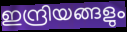
ഇന്ദ്രിയങ്ങളും